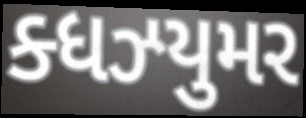
ક્ધઝ્યુમર